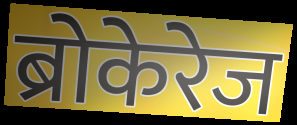
ब्रोकेरेज